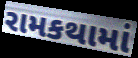
રામકથામાં